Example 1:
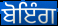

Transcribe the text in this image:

ਬੋਇੰਗ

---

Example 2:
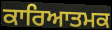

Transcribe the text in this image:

ਕਾਰਿਆਤਮਕ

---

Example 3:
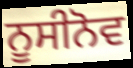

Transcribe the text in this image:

ਨੂਸੀਨੋਵ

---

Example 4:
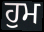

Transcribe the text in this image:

ਹੁਮ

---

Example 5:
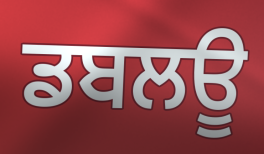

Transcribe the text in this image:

ਡਬਲਊ